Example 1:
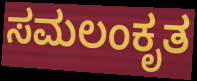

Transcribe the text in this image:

ಸಮಲಂಕೃತ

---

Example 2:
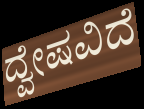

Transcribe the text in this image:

ದ್ವೇಷವಿದೆ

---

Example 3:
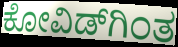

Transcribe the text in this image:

ಕೋವಿಡ್‌ಗಿಂತ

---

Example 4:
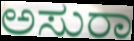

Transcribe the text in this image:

ಅಸುರಾ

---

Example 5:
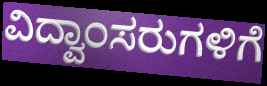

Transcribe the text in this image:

ವಿದ್ವಾಂಸರುಗಳಿಗೆ